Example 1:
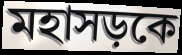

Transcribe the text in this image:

মহাসড়কে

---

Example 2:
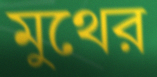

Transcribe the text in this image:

মুথের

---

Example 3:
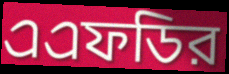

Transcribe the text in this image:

এএফডির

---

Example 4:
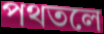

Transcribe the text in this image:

পথতলে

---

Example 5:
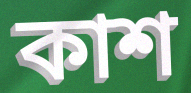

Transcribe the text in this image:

কাশ